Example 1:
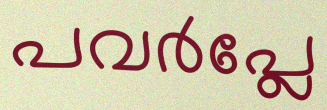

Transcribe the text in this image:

പവർപ്ലേ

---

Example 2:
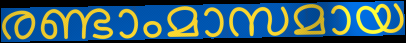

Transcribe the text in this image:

രണ്ടാംമാസമായ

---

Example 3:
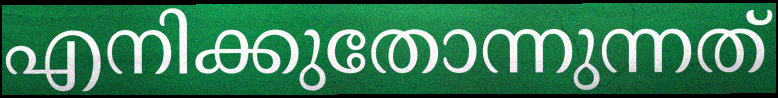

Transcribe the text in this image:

എനിക്കുതോന്നുന്നത്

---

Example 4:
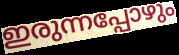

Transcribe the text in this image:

ഇരുന്നപ്പോഴും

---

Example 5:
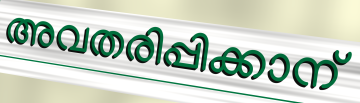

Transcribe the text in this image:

അവതരിപ്പിക്കാന്